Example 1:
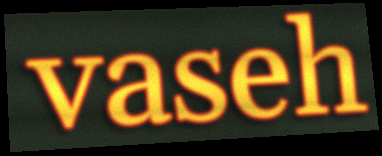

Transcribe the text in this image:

vaseh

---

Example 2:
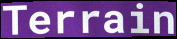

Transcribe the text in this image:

Terrain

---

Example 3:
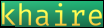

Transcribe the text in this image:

khaire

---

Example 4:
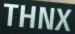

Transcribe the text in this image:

THNX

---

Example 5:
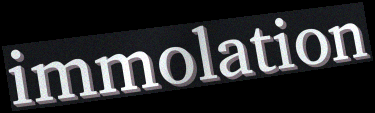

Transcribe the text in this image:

immolation